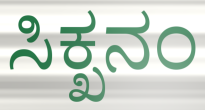
ಸಿಕ್ಖನಂ